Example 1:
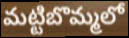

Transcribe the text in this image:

మట్టిబొమ్మలో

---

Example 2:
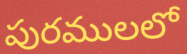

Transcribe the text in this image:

పురములలో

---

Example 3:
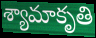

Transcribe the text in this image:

శ్యామాకృతి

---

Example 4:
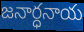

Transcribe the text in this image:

జనార్ధనాయ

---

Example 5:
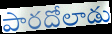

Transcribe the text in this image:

పారదోలాడు